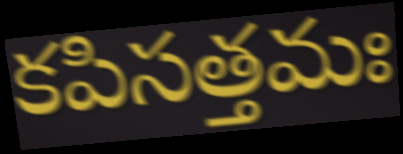
కపిసత్తమః